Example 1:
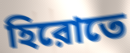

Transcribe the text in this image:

হিরোতে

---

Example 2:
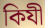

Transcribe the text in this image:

কিযী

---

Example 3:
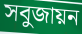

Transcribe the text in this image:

সবুজায়ন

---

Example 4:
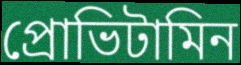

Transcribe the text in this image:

প্রোভিটামিন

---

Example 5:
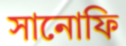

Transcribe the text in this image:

সানোফি